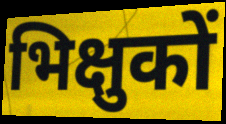
भिक्षुकों